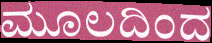
ಮೂಲದಿಂದ